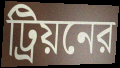
ট্রিয়নের